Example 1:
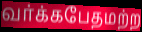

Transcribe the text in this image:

வர்க்கபேதமற்ற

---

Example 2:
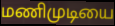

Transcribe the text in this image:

மணிமுடியை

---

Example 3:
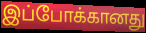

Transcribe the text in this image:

இப்போக்கானது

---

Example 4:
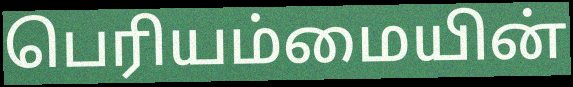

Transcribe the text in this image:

பெரியம்மையின்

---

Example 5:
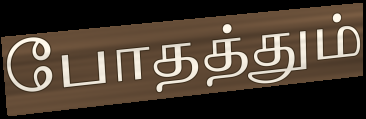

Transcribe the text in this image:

போதத்தும்